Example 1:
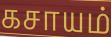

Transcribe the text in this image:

கசாயம்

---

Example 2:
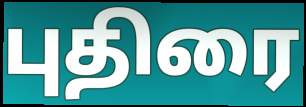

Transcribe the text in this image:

புதிரை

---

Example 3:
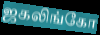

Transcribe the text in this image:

ஜகலிங்கோ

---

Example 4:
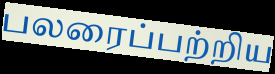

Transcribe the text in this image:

பலரைப்பற்றிய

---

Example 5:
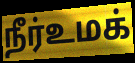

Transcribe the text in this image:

நீர்உமக்